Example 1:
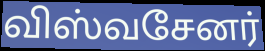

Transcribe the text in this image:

விஸ்வசேனர்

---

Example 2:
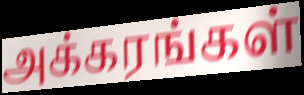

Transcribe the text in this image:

அக்கரங்கள்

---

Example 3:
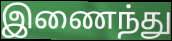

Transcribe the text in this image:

இணைந்து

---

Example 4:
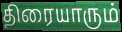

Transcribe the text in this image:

திரையாரும்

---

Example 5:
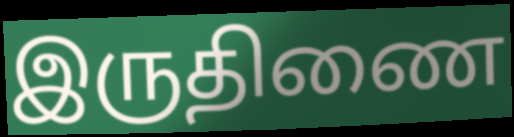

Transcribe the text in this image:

இருதிணை